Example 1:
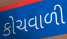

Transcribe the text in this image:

કોચવાળી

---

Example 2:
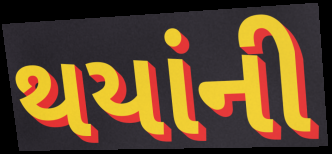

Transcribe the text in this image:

થયાંની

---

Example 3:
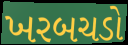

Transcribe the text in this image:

ખરબચડો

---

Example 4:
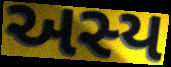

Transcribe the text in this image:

અસ્ય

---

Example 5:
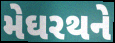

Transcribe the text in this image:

મેઘરથને